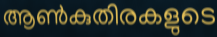
ആൺകുതിരകളുടെ